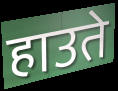
हाउते